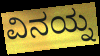
ವಿನಯ್ನ